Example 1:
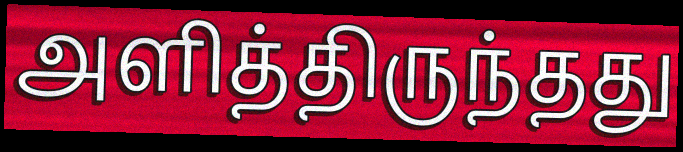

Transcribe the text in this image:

அளித்திருந்தது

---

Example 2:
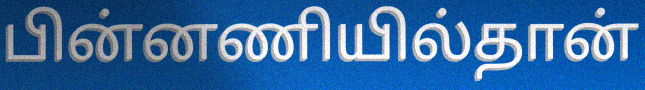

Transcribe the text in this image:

பின்னணியில்தான்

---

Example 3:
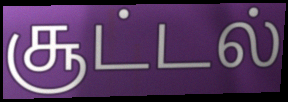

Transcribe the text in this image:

சூட்டல்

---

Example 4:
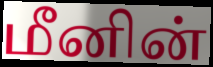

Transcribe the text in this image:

மீனின்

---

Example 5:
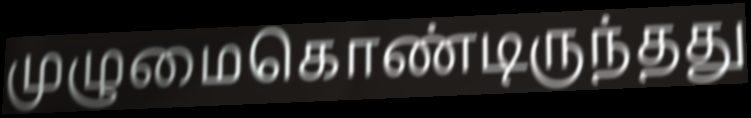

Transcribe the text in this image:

முழுமைகொண்டிருந்தது